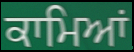
ਕਾਮਿਆਂ